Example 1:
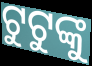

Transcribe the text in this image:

ଟୁଟୁଙ୍କୁ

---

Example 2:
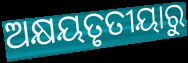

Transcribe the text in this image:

ଅକ୍ଷୟତୃତୀୟାରୁ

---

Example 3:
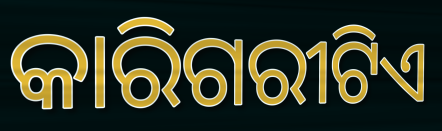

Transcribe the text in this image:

କାରିଗରୀଟିଏ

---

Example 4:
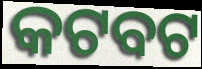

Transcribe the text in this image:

କଟବଟ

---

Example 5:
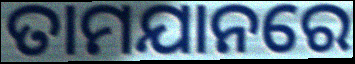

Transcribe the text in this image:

ତାମଯାନରେ